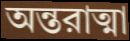
অন্তরাত্মা